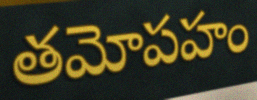
తమోపహం